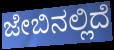
ಜೇಬಿನಲ್ಲಿದೆ